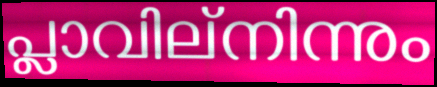
പ്ലാവില്നിന്നും